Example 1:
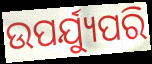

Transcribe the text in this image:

ଉପର୍ଯ୍ୟୁପରି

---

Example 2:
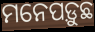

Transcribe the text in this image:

ମନେପଡ଼ୁଛ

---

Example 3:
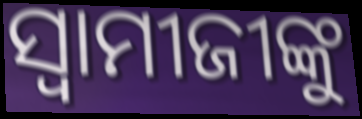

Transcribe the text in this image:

ସ୍ଵାମୀଜୀଙ୍କୁ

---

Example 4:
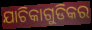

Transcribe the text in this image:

ଯାଚିକାଗୁଡିକର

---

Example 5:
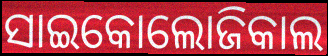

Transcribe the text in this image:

ସାଇକୋଲୋଜିକାଲ